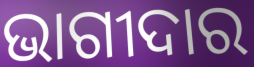
ଭାଗୀଦାର